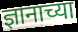
ज्ञानाच्या